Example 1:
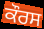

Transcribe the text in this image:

ਕੌਰਸ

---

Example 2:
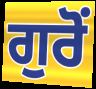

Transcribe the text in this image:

ਗੁਰੋਂ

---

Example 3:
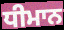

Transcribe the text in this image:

ਧੀਮਾਨ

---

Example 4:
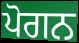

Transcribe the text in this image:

ਪੋਗਨ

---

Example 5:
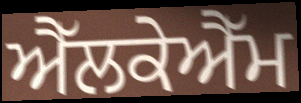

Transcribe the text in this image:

ਐੱਲਕੇਐੱਮ